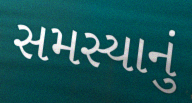
સમસ્યાનું